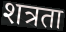
शत्रता